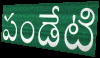
పండేటి